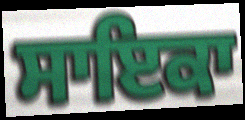
ਸਾਇਕਾ